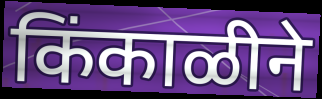
किंकाळीने